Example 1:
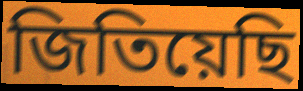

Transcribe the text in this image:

জিতিয়েছি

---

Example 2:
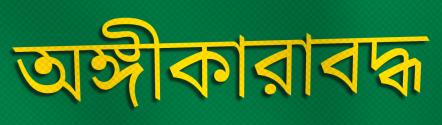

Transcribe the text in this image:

অঙ্গীকারাবদ্ধ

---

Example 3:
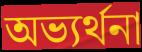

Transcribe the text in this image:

অভ্যর্থনা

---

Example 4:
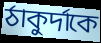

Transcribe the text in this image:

ঠাকুর্দাকে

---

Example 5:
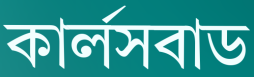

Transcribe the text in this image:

কার্লসবাড